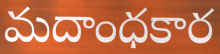
మదాంధకార